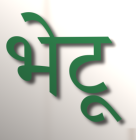
भेटू